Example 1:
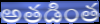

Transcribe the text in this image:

అతడింత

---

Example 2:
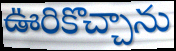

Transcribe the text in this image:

ఊరికొచ్చాను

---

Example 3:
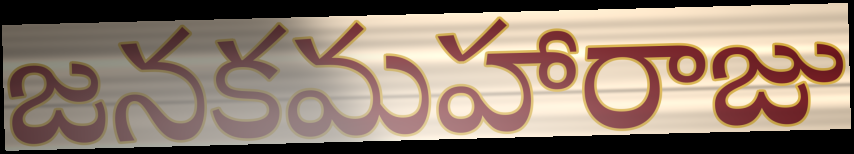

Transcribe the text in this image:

జనకమహారాజు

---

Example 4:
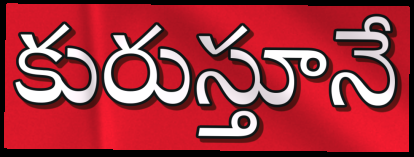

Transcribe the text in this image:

కురుస్తూనే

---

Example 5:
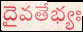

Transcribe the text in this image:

దైవతేభ్యః